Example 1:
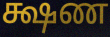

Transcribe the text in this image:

க்ஷண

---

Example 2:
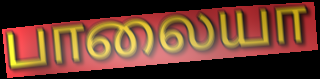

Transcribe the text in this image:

பாலையா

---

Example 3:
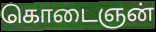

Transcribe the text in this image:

கொடைஞன்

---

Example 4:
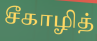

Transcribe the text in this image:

சீகாழித்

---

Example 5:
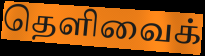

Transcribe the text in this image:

தெளிவைக்